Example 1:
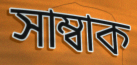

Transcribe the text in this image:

সাম্বাক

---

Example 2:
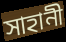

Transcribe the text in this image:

সাহানী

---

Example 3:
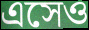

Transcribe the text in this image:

এসেও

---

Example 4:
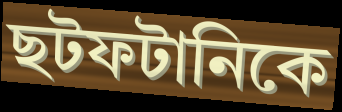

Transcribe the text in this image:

ছটফটানিকে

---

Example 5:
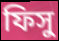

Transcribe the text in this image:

ফিসু